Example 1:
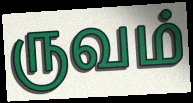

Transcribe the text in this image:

ருவம்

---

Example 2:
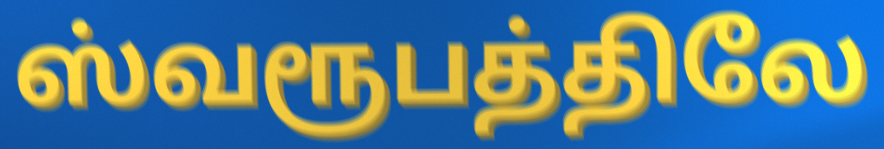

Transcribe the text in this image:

ஸ்வரூபத்திலே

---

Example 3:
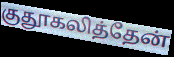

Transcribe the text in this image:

குதூகலித்தேன்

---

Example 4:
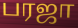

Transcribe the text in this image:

பரஜா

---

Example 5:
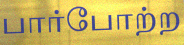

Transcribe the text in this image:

பார்போற்ற